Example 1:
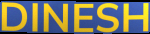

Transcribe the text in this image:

DINESH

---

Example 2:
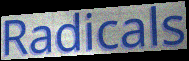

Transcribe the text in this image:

Radicals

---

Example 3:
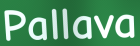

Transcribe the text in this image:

Pallava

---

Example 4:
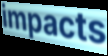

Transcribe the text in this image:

impacts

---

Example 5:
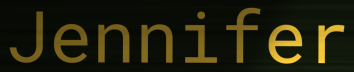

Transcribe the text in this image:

Jennifer